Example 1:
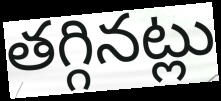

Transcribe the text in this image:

తగ్గినట్లు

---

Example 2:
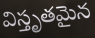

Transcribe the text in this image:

విస్తృతమైన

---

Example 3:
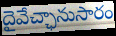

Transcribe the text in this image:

దైవేచ్ఛానుసారం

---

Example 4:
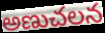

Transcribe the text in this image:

అణుచలన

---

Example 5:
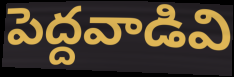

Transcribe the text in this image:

పెద్దవాడివి